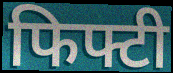
फिफ्टी